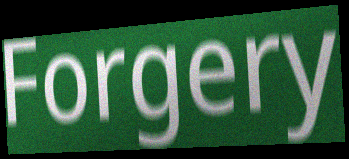
Forgery